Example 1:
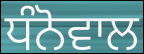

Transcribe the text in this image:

ਧੰਨੋਵਾਲ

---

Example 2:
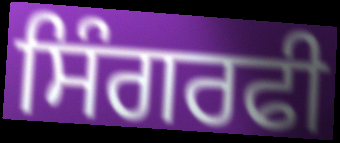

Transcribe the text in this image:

ਸਿੰਗਰਫੀ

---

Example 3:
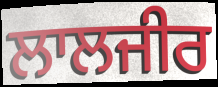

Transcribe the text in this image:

ਲਾਲਜੀਰ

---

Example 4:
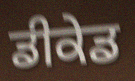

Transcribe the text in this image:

ਡੀਕੇਡ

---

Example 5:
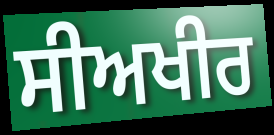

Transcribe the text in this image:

ਸੀਅਖੀਰ